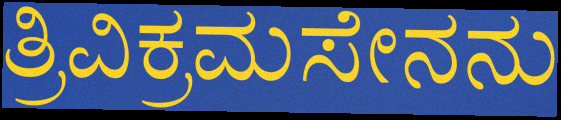
ತ್ರಿವಿಕ್ರಮಸೇನನು